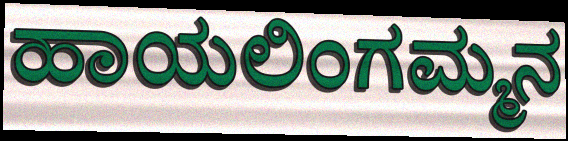
ಹಾಯಲಿಂಗಮ್ಮನ